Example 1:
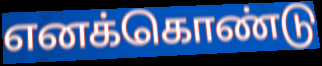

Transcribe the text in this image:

எனக்கொண்டு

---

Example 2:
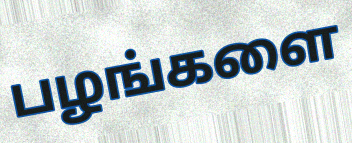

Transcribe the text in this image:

பழங்களை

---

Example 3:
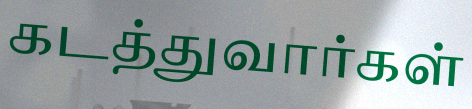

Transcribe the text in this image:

கடத்துவார்கள்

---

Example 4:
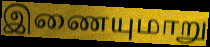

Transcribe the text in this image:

இணையுமாறு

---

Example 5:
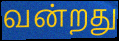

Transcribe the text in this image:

வன்றது